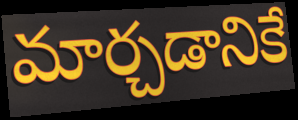
మార్చడానికే